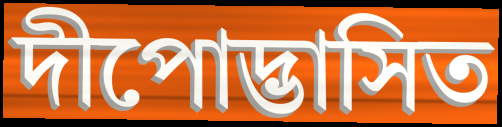
দীপোদ্ভাসিত